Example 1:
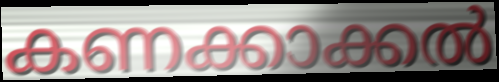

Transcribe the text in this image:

കണക്കാക്കൽ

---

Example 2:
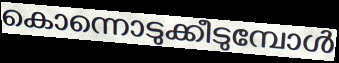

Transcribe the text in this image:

കൊന്നൊടുക്കീടുമ്പോൾ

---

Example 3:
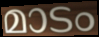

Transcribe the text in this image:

മാടം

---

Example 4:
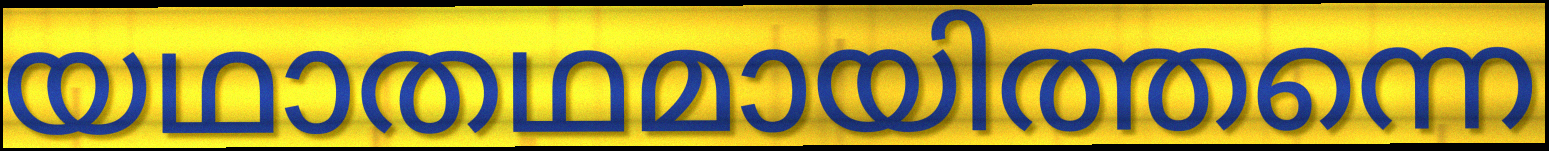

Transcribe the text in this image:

യഥാതഥമായിത്തന്നെ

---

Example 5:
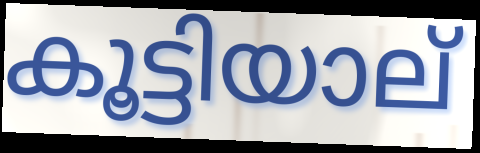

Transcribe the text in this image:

കൂട്ടിയാല്